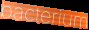
bacterium